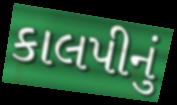
કાલપીનું